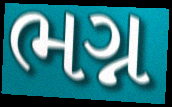
ભગ્ન